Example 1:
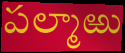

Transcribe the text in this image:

పల్మాఱు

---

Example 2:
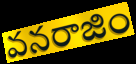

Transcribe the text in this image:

వనరాజిం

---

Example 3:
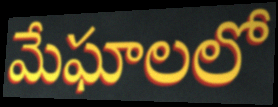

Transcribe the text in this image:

మేఘాలలో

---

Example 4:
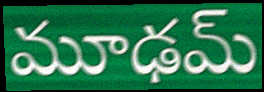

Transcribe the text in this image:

మూఢమ్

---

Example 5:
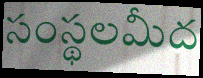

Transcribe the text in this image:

సంస్థలమీద